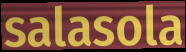
salasola